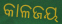
କାଳଜୟ